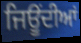
ਜਿਊਂਦੀਆਂ